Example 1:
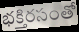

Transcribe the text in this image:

భక్తిరసంతో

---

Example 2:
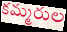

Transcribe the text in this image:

కమ్మరుల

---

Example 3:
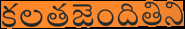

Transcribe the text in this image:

కలతజెందితిని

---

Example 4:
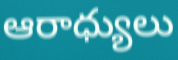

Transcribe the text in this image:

ఆరాధ్యులు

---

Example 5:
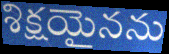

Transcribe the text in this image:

శిక్షయైనను